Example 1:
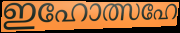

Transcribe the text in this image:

ഇഹോത്സഹേ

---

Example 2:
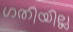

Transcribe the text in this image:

ഗതിയില്ല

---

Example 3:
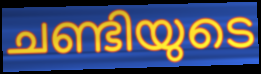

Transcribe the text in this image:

ചണ്ടിയുടെ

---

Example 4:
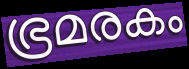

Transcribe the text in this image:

ഭ്രമരകം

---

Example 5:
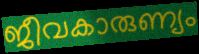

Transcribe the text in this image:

ജീവകാരുണ്യം